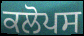
ਕਲੋਪਸ